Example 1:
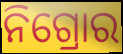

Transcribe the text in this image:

ନିଗ୍ରୋର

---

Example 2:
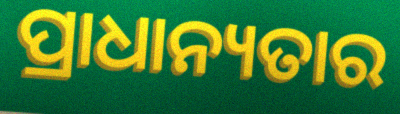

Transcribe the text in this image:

ପ୍ରାଧାନ୍ୟତାର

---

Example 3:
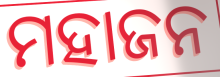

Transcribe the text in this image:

ମହାଜନ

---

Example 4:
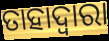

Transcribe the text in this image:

ତାହାଦ୍ଵାରା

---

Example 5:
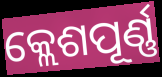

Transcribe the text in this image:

କ୍ଲେଶପୂର୍ଣ୍ଣ